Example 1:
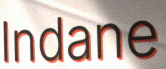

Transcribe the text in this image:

Indane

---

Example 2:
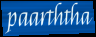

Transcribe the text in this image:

paarththa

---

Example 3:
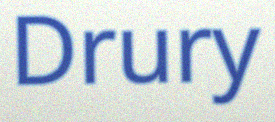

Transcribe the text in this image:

Drury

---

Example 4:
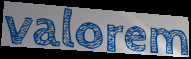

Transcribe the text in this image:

valorem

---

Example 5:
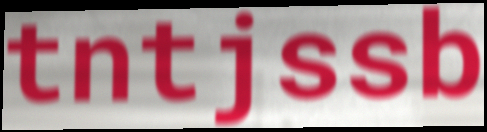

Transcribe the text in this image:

tntjssb